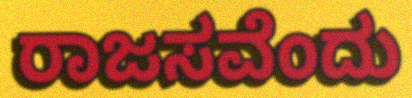
ರಾಜಸವೆಂದು